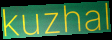
kuzhal